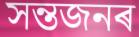
সন্তজনৰ